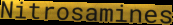
Nitrosamines